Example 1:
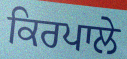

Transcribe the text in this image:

ਕਿਰਪਾਲੇ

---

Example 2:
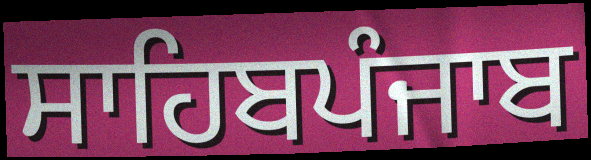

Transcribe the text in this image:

ਸਾਹਿਬਪੰਜਾਬ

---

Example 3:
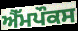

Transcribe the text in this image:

ਐੱਮਪੌਕਸ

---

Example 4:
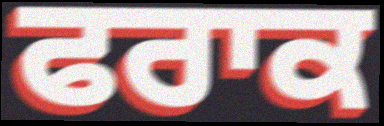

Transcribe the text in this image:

ਫਰਾਕ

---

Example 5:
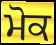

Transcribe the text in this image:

ਮੋਕ